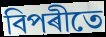
বিপৰীতে